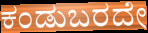
ಕಂಡುಬರದೇ